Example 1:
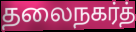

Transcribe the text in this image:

தலைநகர்த்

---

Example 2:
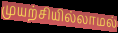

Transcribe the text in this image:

முயற்சியில்லாமல்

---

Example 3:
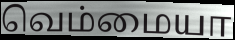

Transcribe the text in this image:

வெம்மையா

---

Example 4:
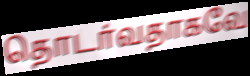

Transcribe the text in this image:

தொடர்வதாகவே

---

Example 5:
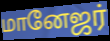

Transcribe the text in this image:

மானேஜர்